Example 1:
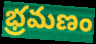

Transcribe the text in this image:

భ్రమణం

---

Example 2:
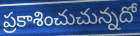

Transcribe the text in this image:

ప్రకాశించుచున్నదో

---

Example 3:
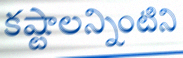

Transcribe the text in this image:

కష్టాలన్నింటిని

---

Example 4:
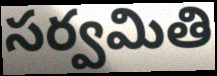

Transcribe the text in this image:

సర్వమితి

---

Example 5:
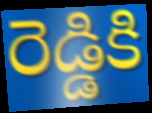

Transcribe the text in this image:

రెడ్డికి